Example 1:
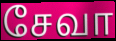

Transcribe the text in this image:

சேவா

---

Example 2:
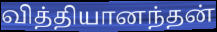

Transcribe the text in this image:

வித்தியானந்தன்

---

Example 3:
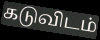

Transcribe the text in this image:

கடுவிடம்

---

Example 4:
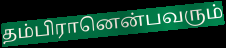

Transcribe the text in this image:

தம்பிரானென்பவரும்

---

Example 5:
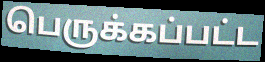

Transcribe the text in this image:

பெருக்கப்பட்ட